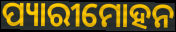
ପ୍ୟାରୀମୋହନ